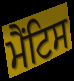
ਮੈਂਟਿਸ